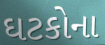
ઘટકોના